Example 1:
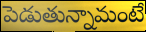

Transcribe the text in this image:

పెడుతున్నామంటే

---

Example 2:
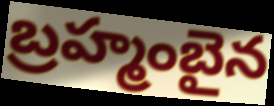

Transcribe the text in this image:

బ్రహ్మంబైన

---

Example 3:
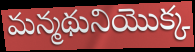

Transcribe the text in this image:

మన్మథునియొక్క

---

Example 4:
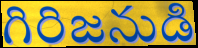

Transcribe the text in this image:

గిరిజనుడి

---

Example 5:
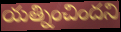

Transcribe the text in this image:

యత్నించిందని